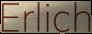
Erlich